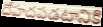
దోహదపడటానికి